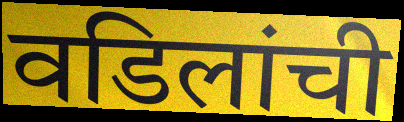
वडिलांची